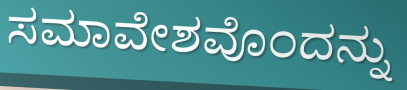
ಸಮಾವೇಶವೊಂದನ್ನು